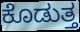
ಕೊಡುತ್ತ